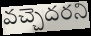
వచ్చెదరని